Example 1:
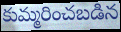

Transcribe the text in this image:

కుమ్మరించబడిన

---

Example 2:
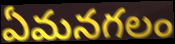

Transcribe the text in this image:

ఏమనగలం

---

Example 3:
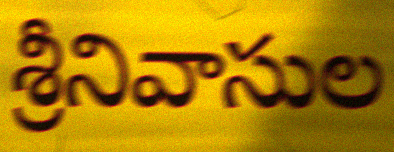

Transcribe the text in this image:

శ్రీనివాసుల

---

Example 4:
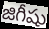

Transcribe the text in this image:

జిగీషు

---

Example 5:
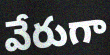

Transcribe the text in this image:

వేరుగా